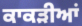
ਕਾਕੜੀਆਂ